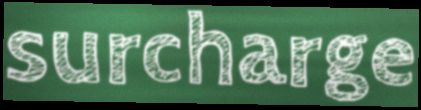
surcharge